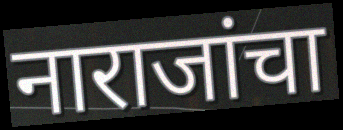
नाराजांचा